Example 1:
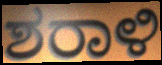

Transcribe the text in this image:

ಶರಾಳಿ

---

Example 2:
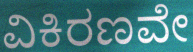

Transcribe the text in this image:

ವಿಕಿರಣವೇ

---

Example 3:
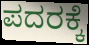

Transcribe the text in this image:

ಪದರಕ್ಕೆ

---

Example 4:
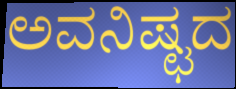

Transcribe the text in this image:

ಅವನಿಷ್ಟದ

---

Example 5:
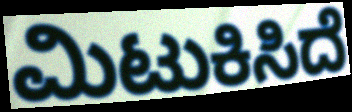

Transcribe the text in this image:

ಮಿಟುಕಿಸಿದೆ